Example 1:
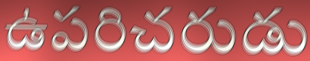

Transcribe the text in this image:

ఉపరిచరుడు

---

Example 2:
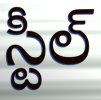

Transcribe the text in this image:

స్టీల్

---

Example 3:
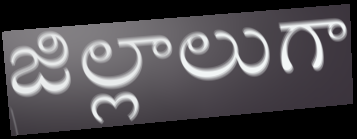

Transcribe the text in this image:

జిల్లాలుగా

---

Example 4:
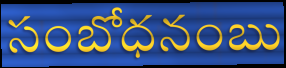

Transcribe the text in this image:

సంబోధనంబు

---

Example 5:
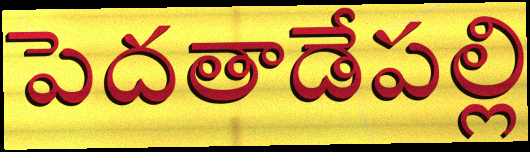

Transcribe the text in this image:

పెదతాడేపల్లి